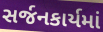
સર્જનકાર્યમાં